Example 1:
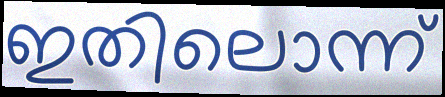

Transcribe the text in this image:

ഇതിലൊന്ന്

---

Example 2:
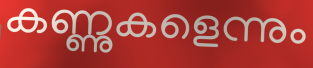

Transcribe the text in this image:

കണ്ണുകളെന്നും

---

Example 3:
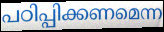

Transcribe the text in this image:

പഠിപ്പിക്കണമെന്ന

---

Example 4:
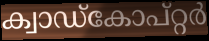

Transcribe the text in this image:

ക്വാഡ്കോപ്റ്റർ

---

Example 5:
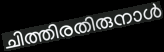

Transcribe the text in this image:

ചിത്തിരതിരുനാൾ